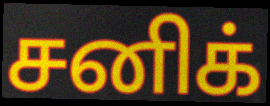
சனிக்